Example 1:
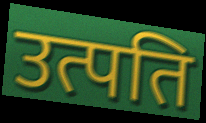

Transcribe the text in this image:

उत्पति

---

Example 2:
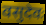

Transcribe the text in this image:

वसुदेवः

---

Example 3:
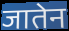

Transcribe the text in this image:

जातेन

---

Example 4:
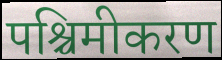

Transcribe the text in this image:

पश्चिमीकरण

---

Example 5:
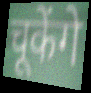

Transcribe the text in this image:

चूकेंगे